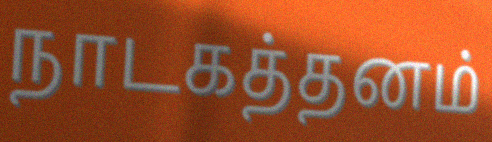
நாடகத்தனம்